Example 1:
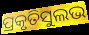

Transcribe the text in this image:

ପ୍ରକୃତିସୁଲଭ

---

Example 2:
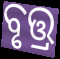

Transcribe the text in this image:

ବୃତ୍ତ୍ର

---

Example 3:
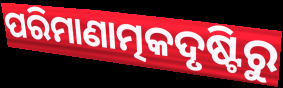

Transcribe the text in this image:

ପରିମାଣାତ୍ମକଦୃଷ୍ଟିରୁ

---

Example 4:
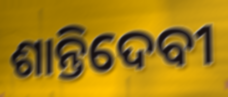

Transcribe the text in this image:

ଶାନ୍ତିଦେବୀ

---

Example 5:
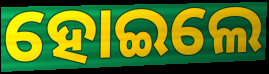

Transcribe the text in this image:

ହୋଇଲେ